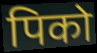
पिको